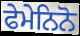
ਫੇਮੇਨਿਨੋ